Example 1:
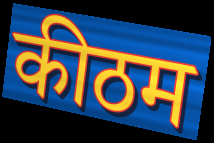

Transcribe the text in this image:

कीठम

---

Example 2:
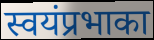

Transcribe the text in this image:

स्वयंप्रभाका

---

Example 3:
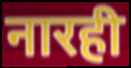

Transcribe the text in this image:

नारही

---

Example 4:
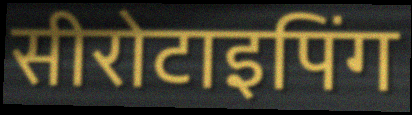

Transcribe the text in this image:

सीरोटाइपिंग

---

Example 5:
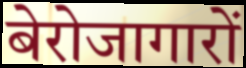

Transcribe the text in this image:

बेरोजागारों